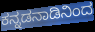
ಕನ್ನಡನಾಡಿನಿಂದ